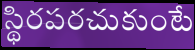
స్థిరపరచుకుంటే